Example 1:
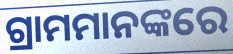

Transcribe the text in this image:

ଗ୍ରାମମାନଙ୍କରେ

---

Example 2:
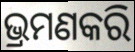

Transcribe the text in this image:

ଭ୍ରମଣକରି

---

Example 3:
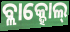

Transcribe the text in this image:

ବ୍ଲାକ୍ହୋଲ୍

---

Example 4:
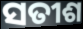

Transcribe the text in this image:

ସତୀଶ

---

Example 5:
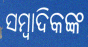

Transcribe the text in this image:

ସମ୍ୱାଦିକଙ୍କ